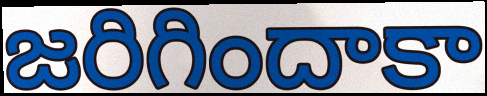
జరిగిందాకా